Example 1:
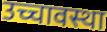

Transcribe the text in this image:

उच्चावस्था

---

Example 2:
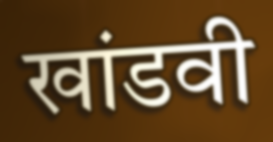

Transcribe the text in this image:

खांडवी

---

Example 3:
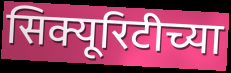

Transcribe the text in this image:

सिक्यूरिटीच्या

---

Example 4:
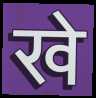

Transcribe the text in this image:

खे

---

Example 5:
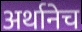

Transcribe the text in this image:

अर्थानेच